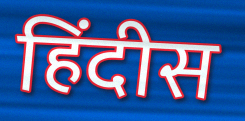
हिंदीस